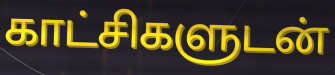
காட்சிகளுடன்